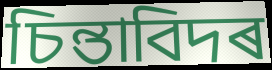
চিন্তাবিদৰ